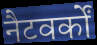
नैटवर्कों